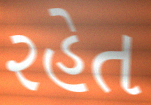
રહેત